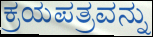
ಕ್ರಯಪತ್ರವನ್ನು